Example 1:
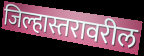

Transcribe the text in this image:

जिल्हास्तरावरील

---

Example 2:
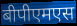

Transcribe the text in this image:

बीपीएमएस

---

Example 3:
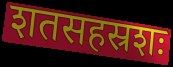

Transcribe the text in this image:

शतसहस्रशः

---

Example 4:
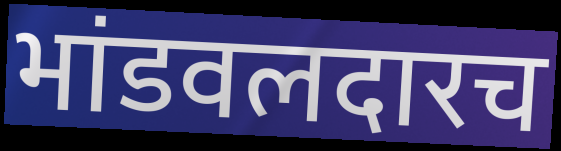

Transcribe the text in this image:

भांडवलदारच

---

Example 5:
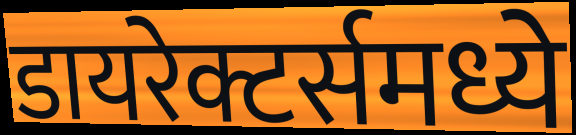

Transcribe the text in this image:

डायरेक्टर्समध्ये